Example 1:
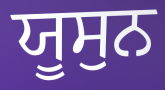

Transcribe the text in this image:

ਯੂਸੁਨ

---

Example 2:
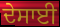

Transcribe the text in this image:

ਦੇਸਾਈ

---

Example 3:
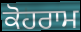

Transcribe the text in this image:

ਕੋਹਰਾਮ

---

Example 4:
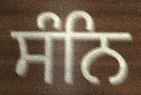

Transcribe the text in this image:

ਸੰਨਿ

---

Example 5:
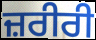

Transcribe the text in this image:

ਜ਼ਰੀਰੀ